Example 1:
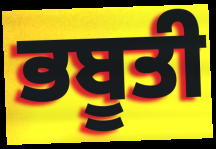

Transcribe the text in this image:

ਭਬੂਤੀ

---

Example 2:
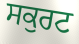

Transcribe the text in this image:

ਸਕੁਰਟ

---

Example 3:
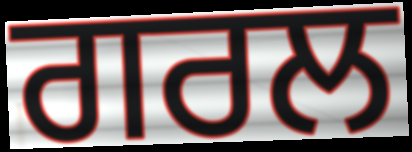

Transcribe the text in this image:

ਗਰਲ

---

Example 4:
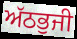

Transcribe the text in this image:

ਅੱਠਭੁਜੀ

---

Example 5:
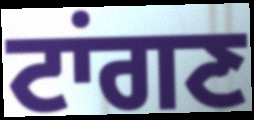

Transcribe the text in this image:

ਟਾਂਗਣ